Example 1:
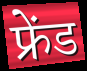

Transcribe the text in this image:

फ्रेंड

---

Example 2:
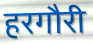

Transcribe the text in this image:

हरगौरी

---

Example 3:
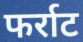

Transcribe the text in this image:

फर्राट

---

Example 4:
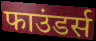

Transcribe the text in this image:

फाउंडर्स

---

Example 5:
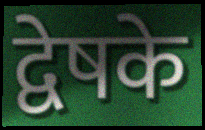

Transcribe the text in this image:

द्वेषके